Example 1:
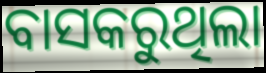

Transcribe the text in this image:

ବାସକରୁଥିଲା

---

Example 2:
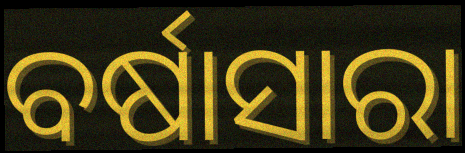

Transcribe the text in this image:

ବର୍ଷାସାରା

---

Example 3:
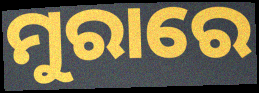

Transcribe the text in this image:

ମୁରାରେ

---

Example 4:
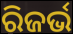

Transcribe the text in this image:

ରିଜର୍ଭ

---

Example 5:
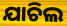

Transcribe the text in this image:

ଯାଚିଲ